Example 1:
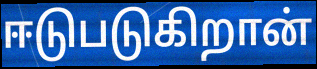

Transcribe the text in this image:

ஈடுபடுகிறான்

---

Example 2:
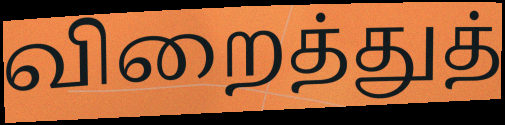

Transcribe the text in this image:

விறைத்துத்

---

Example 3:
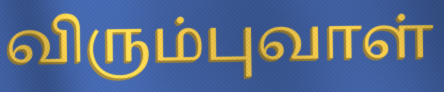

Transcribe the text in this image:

விரும்புவாள்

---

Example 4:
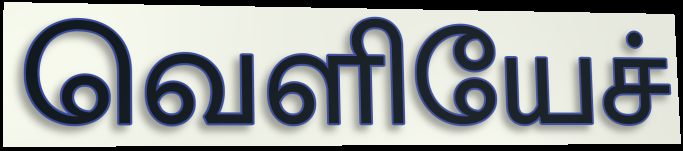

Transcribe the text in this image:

வெளியேச்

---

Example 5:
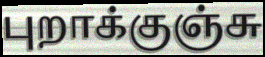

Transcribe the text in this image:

புறாக்குஞ்சு